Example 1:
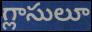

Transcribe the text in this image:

గ్లాసులూ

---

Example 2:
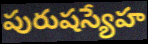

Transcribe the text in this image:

పురుషస్యేహ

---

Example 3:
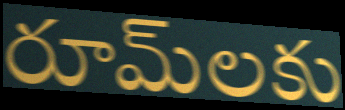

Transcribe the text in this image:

రూమ్‌లకు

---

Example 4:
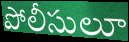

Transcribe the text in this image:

పోలీసులూ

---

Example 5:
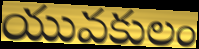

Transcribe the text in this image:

యువకులం